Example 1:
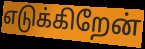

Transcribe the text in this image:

எடுக்கிறேன்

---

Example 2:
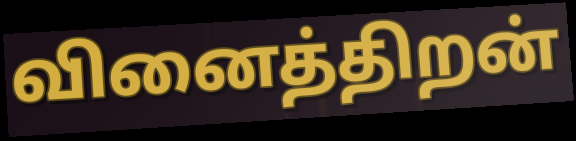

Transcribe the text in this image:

வினைத்திறன்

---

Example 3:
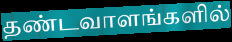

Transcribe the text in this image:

தண்டவாளங்களில்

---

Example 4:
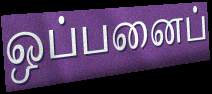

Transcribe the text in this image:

ஒப்பனைப்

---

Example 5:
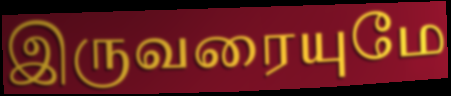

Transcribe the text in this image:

இருவரையுமே